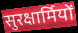
सुरक्षार्मियों